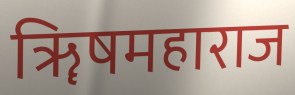
ॠिषमहाराज